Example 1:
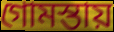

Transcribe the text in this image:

গোমস্তায়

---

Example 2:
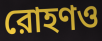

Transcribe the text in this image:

রোহণও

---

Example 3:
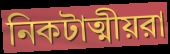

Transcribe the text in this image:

নিকটাত্মীয়রা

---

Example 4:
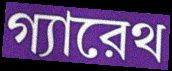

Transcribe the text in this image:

গ্যারেথ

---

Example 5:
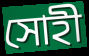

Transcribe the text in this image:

সোহী